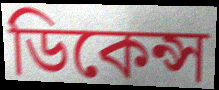
ডিকেন্স